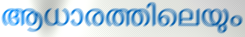
ആധാരത്തിലെയും